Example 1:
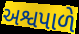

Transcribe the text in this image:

અશ્વપાળે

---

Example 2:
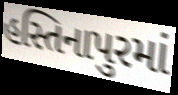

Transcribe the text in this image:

હસ્તિનાપુરમાં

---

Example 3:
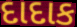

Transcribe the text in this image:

દાદાક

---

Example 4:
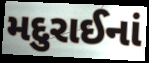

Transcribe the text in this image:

મદુરાઈનાં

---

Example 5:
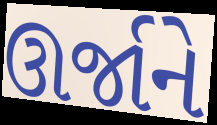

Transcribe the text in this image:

ઊર્જાને